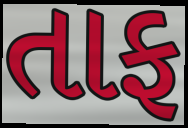
તાફ